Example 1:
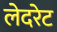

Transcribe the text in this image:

लेदरेट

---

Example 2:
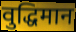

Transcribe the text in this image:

वुद्धिमान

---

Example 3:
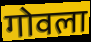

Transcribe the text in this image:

गोवला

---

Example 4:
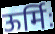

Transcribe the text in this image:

ऊर्मिः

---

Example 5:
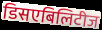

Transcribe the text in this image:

डिसएबिलिटीज